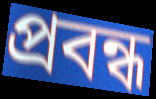
প্ৰবন্ধ